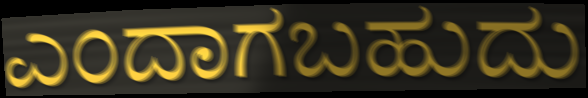
ಎಂದಾಗಬಹುದು